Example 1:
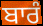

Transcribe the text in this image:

ਬਾਰੰ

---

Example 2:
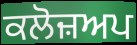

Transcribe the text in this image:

ਕਲੋਜ਼ਅਪ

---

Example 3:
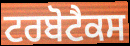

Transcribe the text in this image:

ਟਰਬੋਟੈਕਸ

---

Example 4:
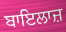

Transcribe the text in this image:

ਬਾਇਲਾਜ਼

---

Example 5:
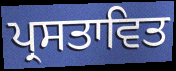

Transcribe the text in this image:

ਪ੍ਰਸਤਾਵਿਤ